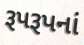
રૂપરૂપનાં